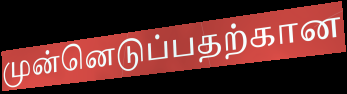
முன்னெடுப்பதற்கான